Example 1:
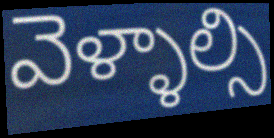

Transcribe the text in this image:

వెళ్ళాల్సి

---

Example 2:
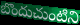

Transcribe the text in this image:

బొందుచుంటిని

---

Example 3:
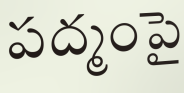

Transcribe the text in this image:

పద్మంపై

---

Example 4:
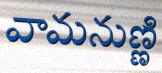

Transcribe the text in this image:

వామనుణ్ణి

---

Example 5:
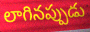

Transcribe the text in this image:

లాగినప్పుడు